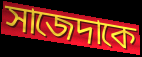
সাজেদাকে